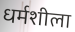
धर्मशीला